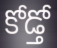
కోడ్తో